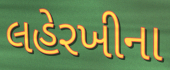
લહેરખીના